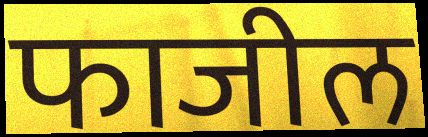
फाजील